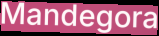
Mandegora